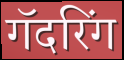
गॅदरिंग